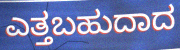
ಎತ್ತಬಹುದಾದ